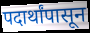
पदार्थांपासून